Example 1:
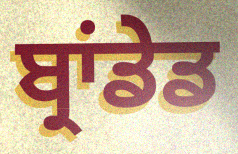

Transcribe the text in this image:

ਬ੍ਰਾਂਡੇਡ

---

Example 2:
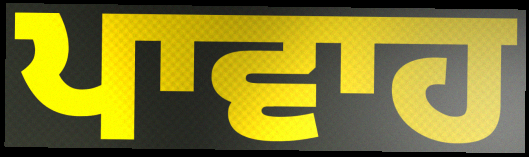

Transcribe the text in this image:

ਪਾਵਾਹ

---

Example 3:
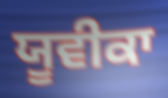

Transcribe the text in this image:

ਯੂਵੀਕਾ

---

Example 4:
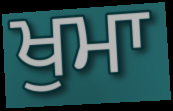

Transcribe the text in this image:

ਖੁਮਾ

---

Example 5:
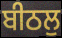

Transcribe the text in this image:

ਬੀਠਲੁ